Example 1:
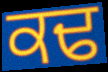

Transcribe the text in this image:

ਕਢ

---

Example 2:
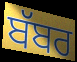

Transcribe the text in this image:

ਬੱਬਰ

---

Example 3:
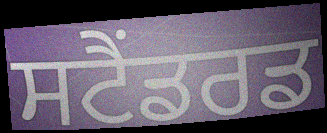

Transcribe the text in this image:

ਸਟੈਂਡਰਡ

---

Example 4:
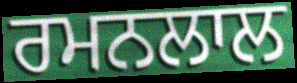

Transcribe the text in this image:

ਰਮਨਲਾਲ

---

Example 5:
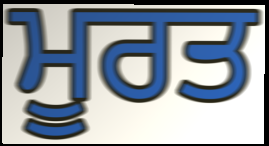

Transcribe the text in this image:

ਮੂਰਤ